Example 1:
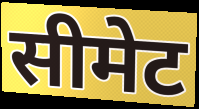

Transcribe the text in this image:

सीमेट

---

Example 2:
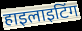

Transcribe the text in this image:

हाइलाइटिंग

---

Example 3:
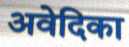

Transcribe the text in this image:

अवेदिका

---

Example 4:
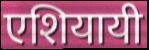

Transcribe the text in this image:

एशियायी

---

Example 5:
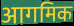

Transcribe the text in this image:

आगमिक